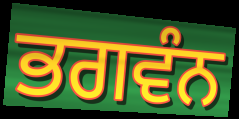
ਭਗਵੰਨ